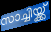
സാച്ചിയ്ക്ക്